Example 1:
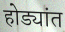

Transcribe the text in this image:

होड्यांत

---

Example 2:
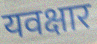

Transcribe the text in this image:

यवक्षार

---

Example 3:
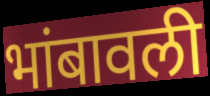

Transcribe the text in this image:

भांबावली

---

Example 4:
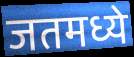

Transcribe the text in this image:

जतमध्ये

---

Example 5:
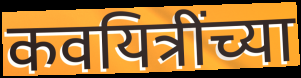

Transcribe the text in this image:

कवयित्रींच्या